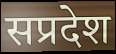
सप्रदेश